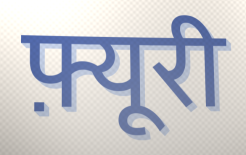
फ़्यूरी